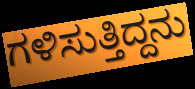
ಗಳಿಸುತ್ತಿದ್ದನು